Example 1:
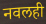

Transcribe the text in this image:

नवलही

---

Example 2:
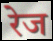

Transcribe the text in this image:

रेज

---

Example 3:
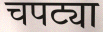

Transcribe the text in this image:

चपट्या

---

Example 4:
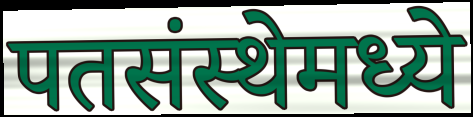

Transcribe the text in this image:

पतसंस्थेमध्ये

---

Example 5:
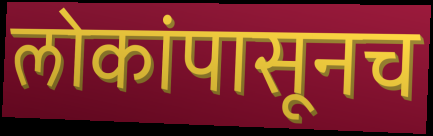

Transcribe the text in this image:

लोकांपासूनच